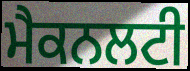
ਮੈਕਨਲਟੀ